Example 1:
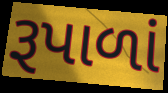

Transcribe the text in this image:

રૂપાળાં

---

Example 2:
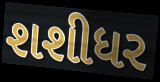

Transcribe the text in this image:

શશીધર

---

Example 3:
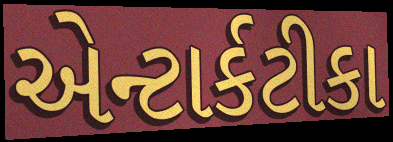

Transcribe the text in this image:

એન્ટાર્કટીકા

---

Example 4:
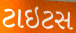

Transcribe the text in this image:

ટાઇટસ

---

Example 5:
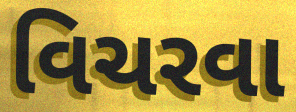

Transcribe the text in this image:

વિચરવા